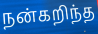
நன்கறிந்த